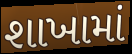
શાખામાં